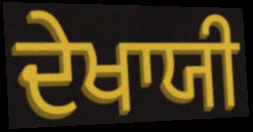
ਦੇਖਾਯੀ